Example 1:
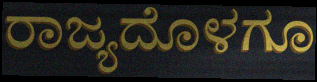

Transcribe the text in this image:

ರಾಜ್ಯದೊಳಗೂ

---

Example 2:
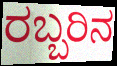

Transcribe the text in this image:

ರಬ್ಬರಿನ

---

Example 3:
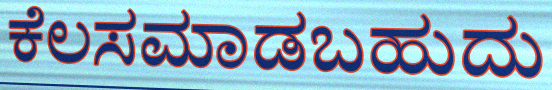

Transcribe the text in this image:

ಕೆಲಸಮಾಡಬಹುದು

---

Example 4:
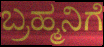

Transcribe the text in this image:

ಬ್ರಹ್ಮನಿಗೆ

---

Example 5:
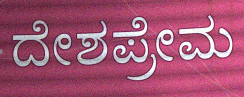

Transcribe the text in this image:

ದೇಶಪ್ರೇಮ